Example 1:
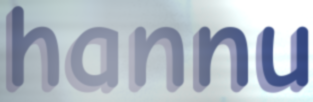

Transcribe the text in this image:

hannu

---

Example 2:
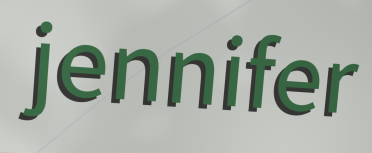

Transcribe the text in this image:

jennifer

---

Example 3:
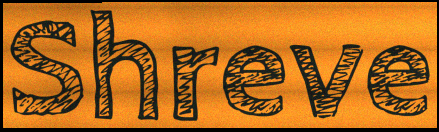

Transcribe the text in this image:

Shreve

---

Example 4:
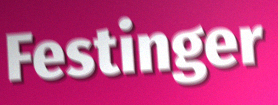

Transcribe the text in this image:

Festinger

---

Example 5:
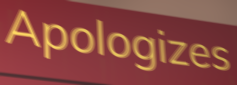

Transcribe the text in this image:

Apologizes